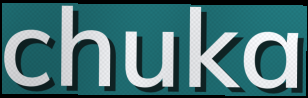
chuka